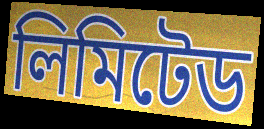
লিমিটেড